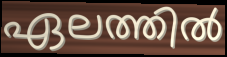
ഏലത്തിൽ